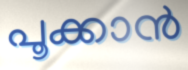
പൂക്കാൻ